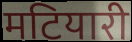
मटियारी